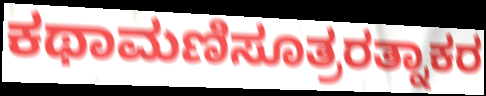
ಕಥಾಮಣಿಸೂತ್ರರತ್ನಾಕರ